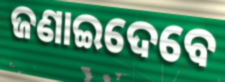
ଜଣାଇଦେବେ